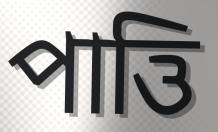
পাত্তি